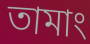
তামাং